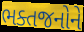
ભક્તજનોને